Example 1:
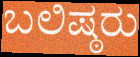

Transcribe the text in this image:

ಬಲಿಷ್ಠರು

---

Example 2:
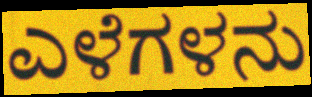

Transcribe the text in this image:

ಎಳೆಗಳನು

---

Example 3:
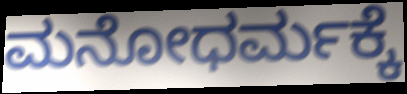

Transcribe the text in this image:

ಮನೋಧರ್ಮಕ್ಕೆ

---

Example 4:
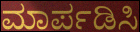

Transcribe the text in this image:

ಮಾರ್ಪಡಿಸಿ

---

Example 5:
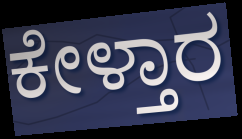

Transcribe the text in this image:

ಕೇಳ್ತಾರ